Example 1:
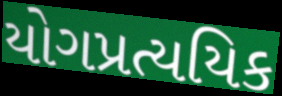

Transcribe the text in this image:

યોગપ્રત્યયિક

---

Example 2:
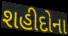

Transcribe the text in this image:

શહીદોના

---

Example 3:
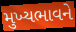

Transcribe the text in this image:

મુખ્યભાવને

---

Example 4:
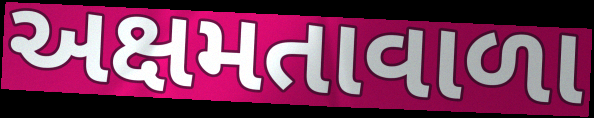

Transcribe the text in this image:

અક્ષમતાવાળા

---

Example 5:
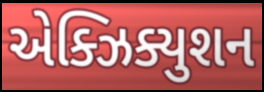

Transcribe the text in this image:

એક્ઝિક્યુશન